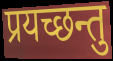
प्रयच्छन्तु